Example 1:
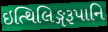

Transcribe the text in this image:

ઇત્થિલિઙ્ગરૂપાનિ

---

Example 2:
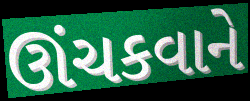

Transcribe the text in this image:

ઊંચકવાને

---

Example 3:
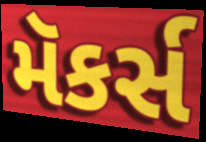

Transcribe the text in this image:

મૅકર્સ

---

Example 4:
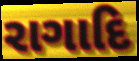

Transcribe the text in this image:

રાગાદિ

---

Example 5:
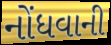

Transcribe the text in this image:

નોંધવાની